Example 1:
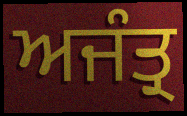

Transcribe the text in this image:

ਅਜੰਤ੍ਰ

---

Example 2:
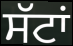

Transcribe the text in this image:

ਸੱਟਾਂ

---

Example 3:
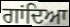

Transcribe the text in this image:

ਗਾਂਦਿਆ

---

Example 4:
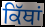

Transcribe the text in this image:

ਕਿੱਥਾਂ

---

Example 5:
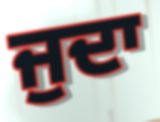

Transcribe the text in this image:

ਜੁਦਾ